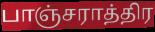
பாஞ்சராத்திர